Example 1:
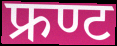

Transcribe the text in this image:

फ्रण्ट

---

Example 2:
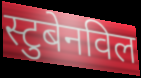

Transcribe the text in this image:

स्टुबेनविल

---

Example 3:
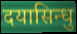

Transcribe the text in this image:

दयासिन्धु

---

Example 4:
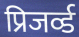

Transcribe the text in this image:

प्रिजर्व्ड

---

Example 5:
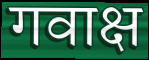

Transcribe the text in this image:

गवाक्ष